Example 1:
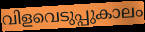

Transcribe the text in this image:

വിളവെടുപ്പുകാലം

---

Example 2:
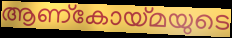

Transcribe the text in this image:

ആണ്കോയ്മയുടെ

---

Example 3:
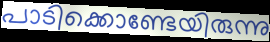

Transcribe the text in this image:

പാടിക്കൊണ്ടേയിരുന്നു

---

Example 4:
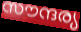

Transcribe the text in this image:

സൗന്ദര്യ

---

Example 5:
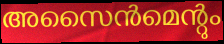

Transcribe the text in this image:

അസൈൻമെന്റും